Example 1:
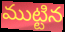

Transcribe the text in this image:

ముట్టిన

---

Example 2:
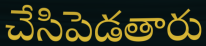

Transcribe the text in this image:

చేసిపెడతారు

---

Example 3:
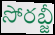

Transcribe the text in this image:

సోరబ్జీ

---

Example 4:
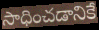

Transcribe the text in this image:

సాధించడానికే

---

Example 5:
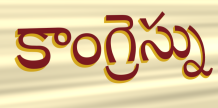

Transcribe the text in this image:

కాంగ్రెస్ను